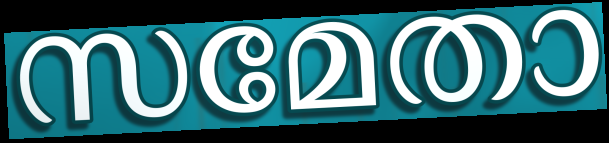
സമേതാ